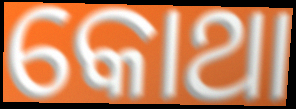
କୋଥା